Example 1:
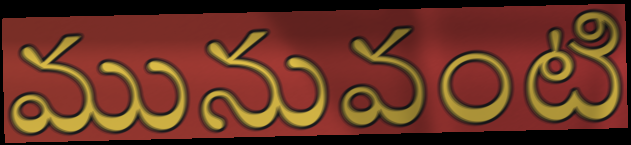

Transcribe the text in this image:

మునువంటి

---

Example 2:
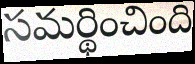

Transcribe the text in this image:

సమర్థించింది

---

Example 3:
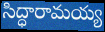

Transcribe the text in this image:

సిద్ధారామయ్య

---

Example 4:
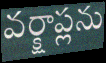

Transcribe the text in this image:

వర్క్షాప్లను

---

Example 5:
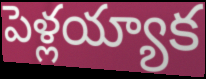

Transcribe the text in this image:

పెళ్లయ్యాక